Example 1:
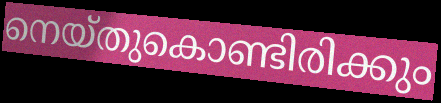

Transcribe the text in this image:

നെയ്തുകൊണ്ടിരിക്കും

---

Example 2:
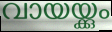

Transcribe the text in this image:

വായയ്ക്കും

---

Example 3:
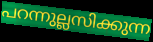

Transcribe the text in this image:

പറന്നുല്ലസിക്കുന്ന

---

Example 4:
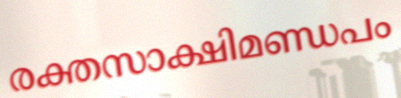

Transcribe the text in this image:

രക്തസാക്ഷിമണ്ഡപം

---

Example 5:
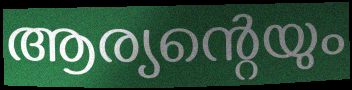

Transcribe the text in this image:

ആര്യന്റെയും